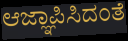
ಆಜ್ಞಾಪಿಸಿದಂತೆ